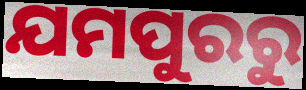
ଯମପୁରରୁ